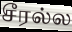
சீரல்ல